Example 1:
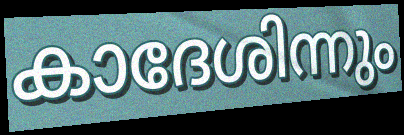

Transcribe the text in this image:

കാദേശിന്നും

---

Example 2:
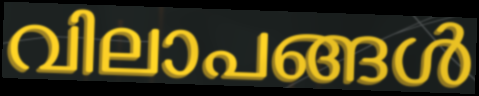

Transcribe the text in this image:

വിലാപങ്ങൾ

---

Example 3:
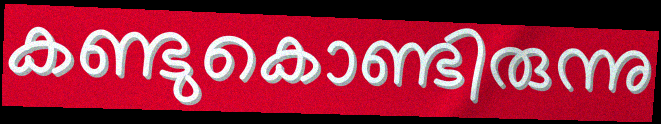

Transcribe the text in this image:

കണ്ടുകൊണ്ടിരുന്നു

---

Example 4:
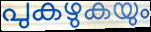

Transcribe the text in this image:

പുകഴുകയും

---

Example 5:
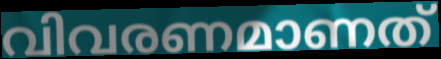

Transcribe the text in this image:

വിവരണമാണത്